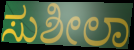
ಸುಶೀಲಾ